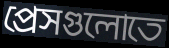
প্রেসগুলোতে